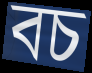
বচ